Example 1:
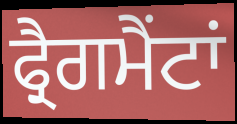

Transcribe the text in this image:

ਫ੍ਰੈਗਮੈਂਟਾਂ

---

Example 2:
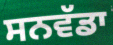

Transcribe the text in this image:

ਸਨਵੱਡਾ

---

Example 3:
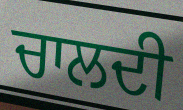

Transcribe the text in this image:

ਚਾਲਦੀ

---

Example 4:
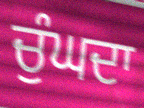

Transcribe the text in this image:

ਚੁੰਘਦਾ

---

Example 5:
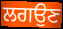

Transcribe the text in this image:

ਲਗਉਣ